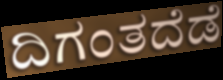
ದಿಗಂತದೆಡೆ